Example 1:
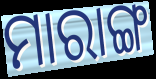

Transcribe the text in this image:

ମାରାଙ୍ଗ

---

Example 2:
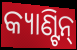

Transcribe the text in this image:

କ୍ୟାଣ୍ଟିନ୍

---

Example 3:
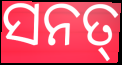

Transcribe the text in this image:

ସନତ୍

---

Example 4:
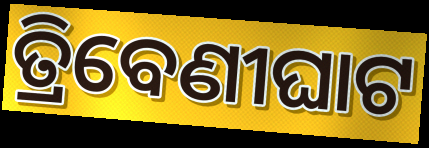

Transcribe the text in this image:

ତ୍ରିବେଣୀଘାଟ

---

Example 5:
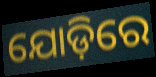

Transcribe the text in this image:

ଯୋଡ଼ିରେ